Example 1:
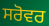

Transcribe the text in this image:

ਸਰੋਵਰ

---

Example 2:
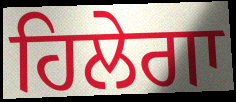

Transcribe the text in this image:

ਹਿਲੇਗਾ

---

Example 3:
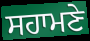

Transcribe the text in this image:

ਸਹਾਮਣੇ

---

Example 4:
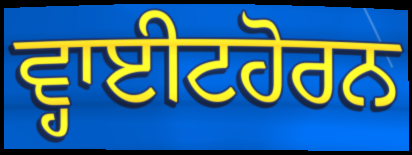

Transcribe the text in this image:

ਵ੍ਹਾਈਟਹੋਰਨ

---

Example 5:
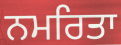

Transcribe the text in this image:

ਨਮਰਿਤਾ